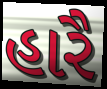
હારૈ